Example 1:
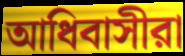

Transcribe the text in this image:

আধিবাসীরা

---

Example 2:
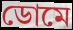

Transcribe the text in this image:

ডোমে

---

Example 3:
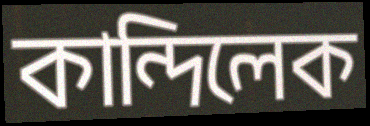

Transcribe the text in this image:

কান্দিলেক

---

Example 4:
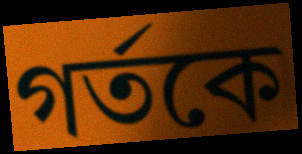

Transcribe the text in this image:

গর্তকে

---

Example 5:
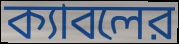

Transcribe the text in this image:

ক্যাবলের